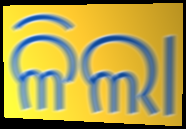
ଳିଲା